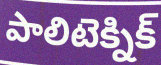
పాలిటెక్నిక్